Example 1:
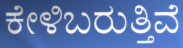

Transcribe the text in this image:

ಕೇಳಿಬರುತ್ತಿವೆ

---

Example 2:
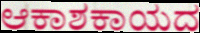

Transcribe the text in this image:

ಆಕಾಶಕಾಯದ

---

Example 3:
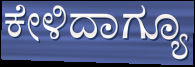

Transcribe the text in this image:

ಕೇಳಿದಾಗ್ಯೂ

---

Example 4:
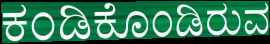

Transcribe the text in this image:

ಕಂಡಿಕೊಂಡಿರುವ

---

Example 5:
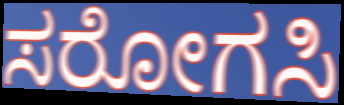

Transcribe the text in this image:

ಸರೋಗಸಿ